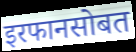
इरफानसोबत